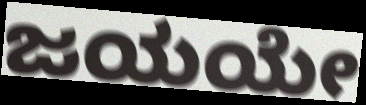
ಜಯಯೇ